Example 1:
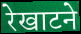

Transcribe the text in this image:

रेखाटने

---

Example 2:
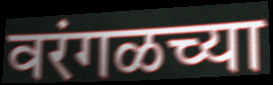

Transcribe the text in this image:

वरंगळच्या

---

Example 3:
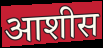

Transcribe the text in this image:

आशीस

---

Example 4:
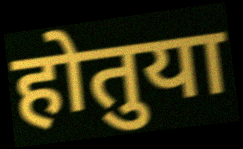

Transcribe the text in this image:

होतुया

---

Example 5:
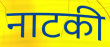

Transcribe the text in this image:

नाटकी